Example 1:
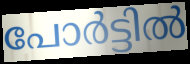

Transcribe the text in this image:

പോർട്ടിൽ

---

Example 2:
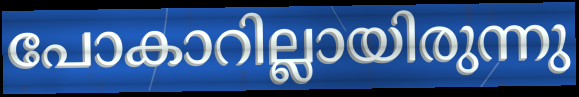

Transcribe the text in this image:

പോകാറില്ലായിരുന്നു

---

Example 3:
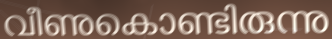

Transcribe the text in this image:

വീണുകൊണ്ടിരുന്നു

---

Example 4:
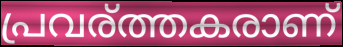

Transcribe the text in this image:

പ്രവര്ത്തകരാണ്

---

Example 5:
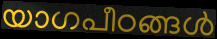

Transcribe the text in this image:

യാഗപീഠങ്ങൾ